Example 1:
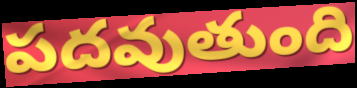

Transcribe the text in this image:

పదవుతుంది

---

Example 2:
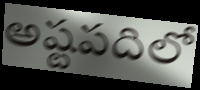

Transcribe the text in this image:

అష్టపదిలో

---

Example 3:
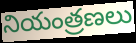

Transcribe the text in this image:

నియంత్రణలు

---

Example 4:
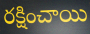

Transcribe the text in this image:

రక్షించాయి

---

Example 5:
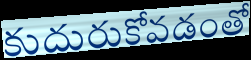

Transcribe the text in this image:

కుదురుకోవడంతో